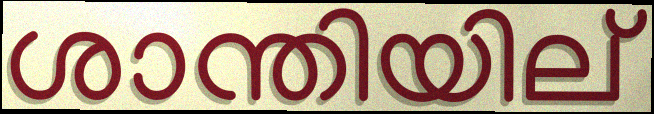
ശാന്തിയില്